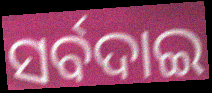
ସର୍ବଦାଇ